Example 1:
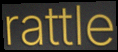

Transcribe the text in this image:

rattle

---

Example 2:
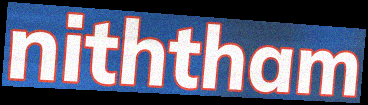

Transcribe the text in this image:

niththam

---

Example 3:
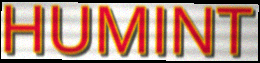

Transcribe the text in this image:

HUMINT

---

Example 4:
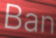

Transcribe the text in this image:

Ban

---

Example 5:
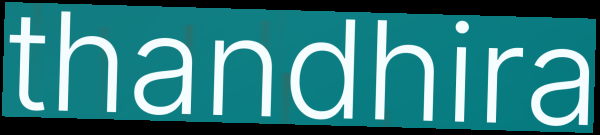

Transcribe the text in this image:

thandhira